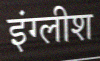
इंग्लीश